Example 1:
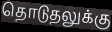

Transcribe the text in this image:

தொடுதலுக்கு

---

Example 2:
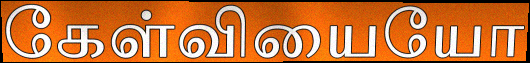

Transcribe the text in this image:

கேள்வியையோ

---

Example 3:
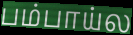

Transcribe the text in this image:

பம்பாய்ல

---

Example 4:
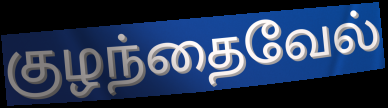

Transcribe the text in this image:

குழந்தைவேல்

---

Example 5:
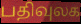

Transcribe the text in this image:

பதிவுலக